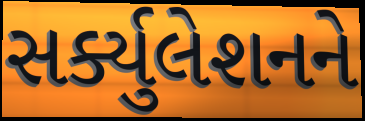
સર્ક્યુલેશનને